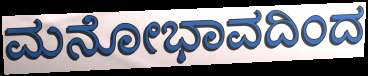
ಮನೋಭಾವದಿಂದ